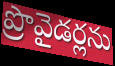
ప్రొవైడర్లను